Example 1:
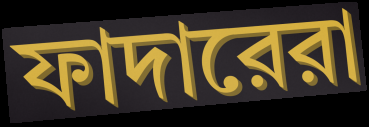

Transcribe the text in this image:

ফাদারেরা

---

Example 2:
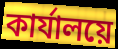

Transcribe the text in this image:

কার্যালয়ে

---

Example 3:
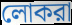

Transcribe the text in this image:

লোকরা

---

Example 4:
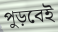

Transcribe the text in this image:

পুড়বেই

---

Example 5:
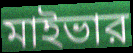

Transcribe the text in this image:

মাইভার